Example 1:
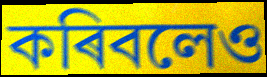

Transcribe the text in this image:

কৰিবলেও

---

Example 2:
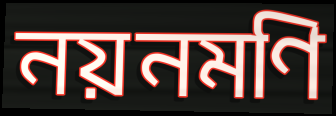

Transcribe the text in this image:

নয়নমণি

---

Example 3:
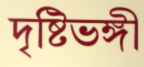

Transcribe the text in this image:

দৃষ্টিভঙ্গী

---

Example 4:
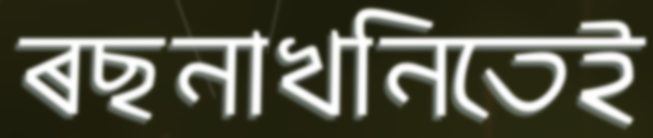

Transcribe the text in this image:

ৰছনাখনিতেই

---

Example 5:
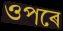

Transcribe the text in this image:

ওপৰে